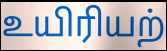
உயிரியற்